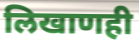
लिखाणही